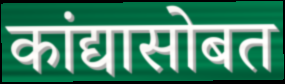
कांद्यासोबत